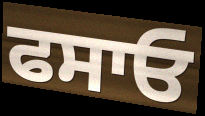
ਫਸਾਓ